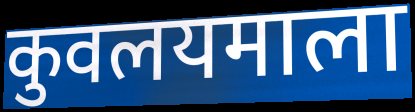
कुवलयमाला